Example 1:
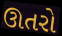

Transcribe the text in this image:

ઊતરો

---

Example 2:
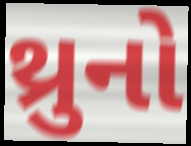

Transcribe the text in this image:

થ્રુનો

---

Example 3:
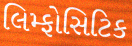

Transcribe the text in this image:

લિમ્ફોસિટિક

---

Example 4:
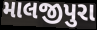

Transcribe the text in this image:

માલજીપુરા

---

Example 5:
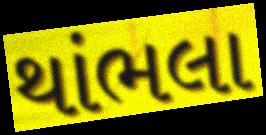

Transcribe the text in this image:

થાંભલા